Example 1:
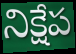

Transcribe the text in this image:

నిక్షేప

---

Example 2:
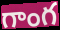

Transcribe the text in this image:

గాంగ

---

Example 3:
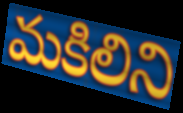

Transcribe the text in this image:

మకిలిని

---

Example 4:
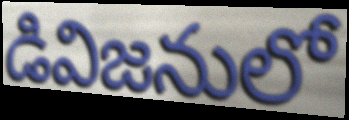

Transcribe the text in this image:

డివిజనులో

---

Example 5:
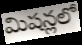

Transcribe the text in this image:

మిషన్లలో